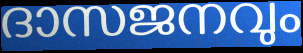
ദാസജനവും